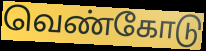
வெண்கோடு